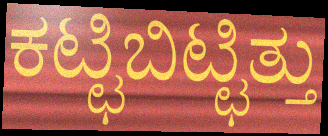
ಕಟ್ಟಿಬಿಟ್ಟಿತ್ತು